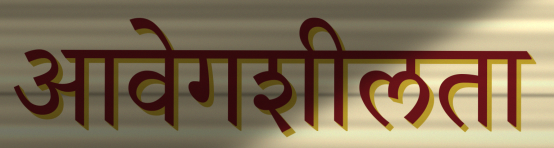
आवेगशीलता